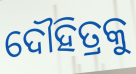
ଦୌହିତ୍ରକୁ